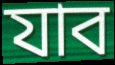
যাব